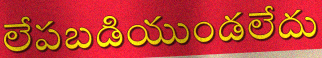
లేపబడియుండలేదు